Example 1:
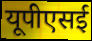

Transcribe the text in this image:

यूपीएसई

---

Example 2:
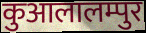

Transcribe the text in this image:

कुआलालम्पुर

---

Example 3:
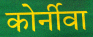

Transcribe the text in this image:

कोर्नीवा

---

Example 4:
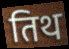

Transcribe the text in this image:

तिथ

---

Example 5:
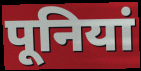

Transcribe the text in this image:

पूनियां